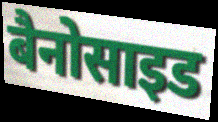
बैनोसाइड